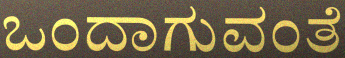
ಒಂದಾಗುವಂತೆ